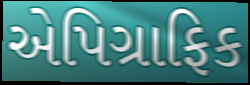
એપિગ્રાફિક